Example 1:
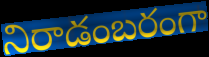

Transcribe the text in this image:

నిరాడంబరంగా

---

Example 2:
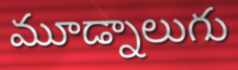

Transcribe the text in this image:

మూడ్నాలుగు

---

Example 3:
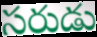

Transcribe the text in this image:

సరుడు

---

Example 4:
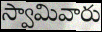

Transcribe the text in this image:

స్వామివారు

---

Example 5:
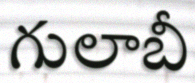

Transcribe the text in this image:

గులాబీ